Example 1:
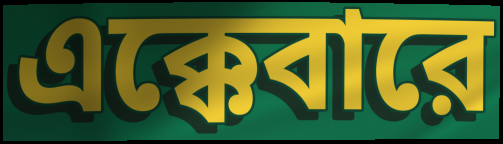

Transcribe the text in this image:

এক্কেবারে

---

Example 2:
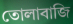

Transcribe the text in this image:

তোলাবাজি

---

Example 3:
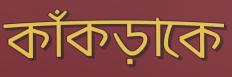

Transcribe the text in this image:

কাঁকড়াকে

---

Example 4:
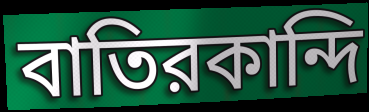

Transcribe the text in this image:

বাতিরকান্দি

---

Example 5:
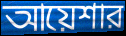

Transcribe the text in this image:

আয়েশার